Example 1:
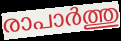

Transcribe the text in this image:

രാപാർത്തു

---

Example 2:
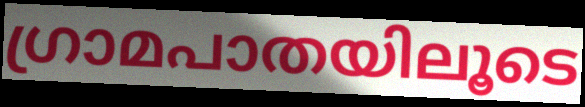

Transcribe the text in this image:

ഗ്രാമപാതയിലൂടെ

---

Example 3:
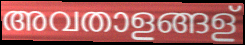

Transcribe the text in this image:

അവതാളങ്ങള്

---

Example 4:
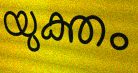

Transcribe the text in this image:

യുക്തം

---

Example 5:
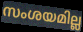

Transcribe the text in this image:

സംശയമില്ല